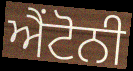
ਐਂਟੋਨੀ